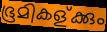
ഭൂമികള്ക്കും